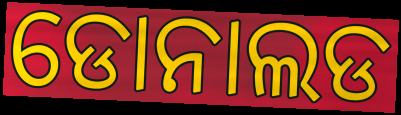
ଡୋନାଲଡ